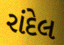
રાંદેલ